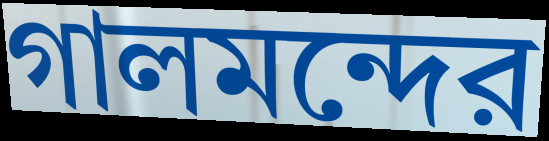
গালমন্দের